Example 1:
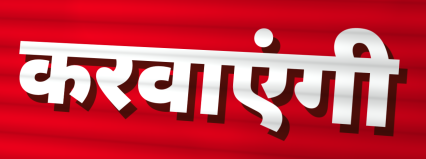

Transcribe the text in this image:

करवाएंगी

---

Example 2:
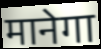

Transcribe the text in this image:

मानेगा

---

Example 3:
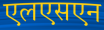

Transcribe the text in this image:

एलएसएन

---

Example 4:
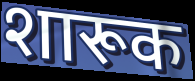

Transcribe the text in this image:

शारूक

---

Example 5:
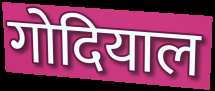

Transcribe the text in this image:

गोदियाल